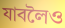
যাবলৈও